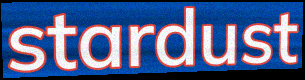
stardust